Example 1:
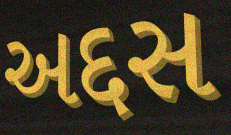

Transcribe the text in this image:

અદ્દસ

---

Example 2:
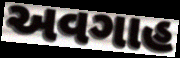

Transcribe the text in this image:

અવગાહ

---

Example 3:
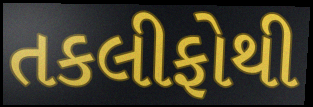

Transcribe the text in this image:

તકલીફોથી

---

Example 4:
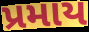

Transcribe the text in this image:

પ્રમાય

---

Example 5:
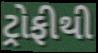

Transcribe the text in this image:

ટ્રોફીથી